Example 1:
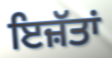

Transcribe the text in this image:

ਇਜ਼ੱਤਾਂ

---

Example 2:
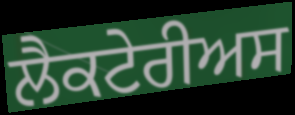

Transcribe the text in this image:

ਲੈਕਟੇਰੀਅਸ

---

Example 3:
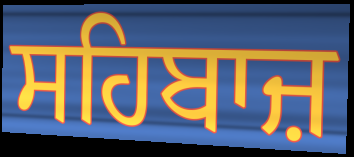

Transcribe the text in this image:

ਸਹਿਬਾਜ਼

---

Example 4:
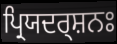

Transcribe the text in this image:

ਪ੍ਰਿਯਦਰ੍ਸ਼ਨਃ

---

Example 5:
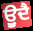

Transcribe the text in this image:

ਊੁਦੈ